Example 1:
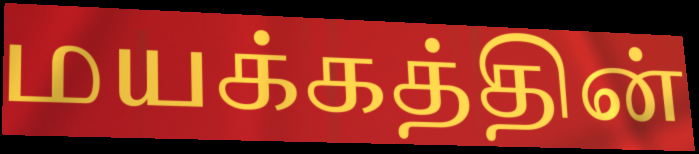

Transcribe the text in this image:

மயக்கத்தின்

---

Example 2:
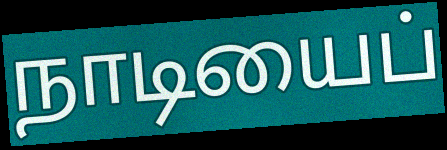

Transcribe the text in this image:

நாடியைப்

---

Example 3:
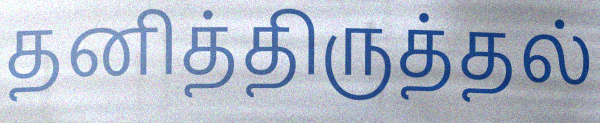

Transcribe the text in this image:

தனித்திருத்தல்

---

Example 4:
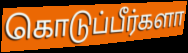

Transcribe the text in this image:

கொடுப்பீர்களா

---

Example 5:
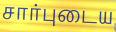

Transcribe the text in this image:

சார்புடைய